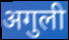
अगुली